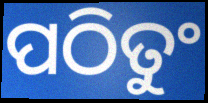
ପଠିତୁଂ